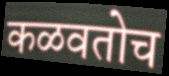
कळवतोच